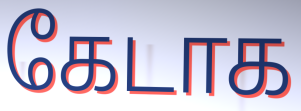
கேடாக